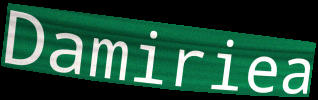
Damiriea